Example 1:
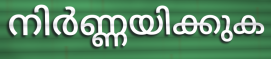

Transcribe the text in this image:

നിർണ്ണയിക്കുക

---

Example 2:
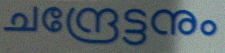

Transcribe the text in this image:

ചന്ദ്രേട്ടനും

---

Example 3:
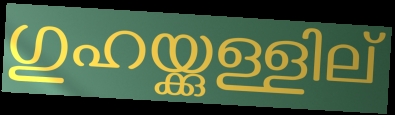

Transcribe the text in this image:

ഗുഹയ്ക്കുള്ളില്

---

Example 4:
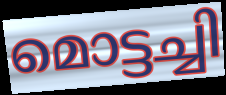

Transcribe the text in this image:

മൊട്ടച്ചി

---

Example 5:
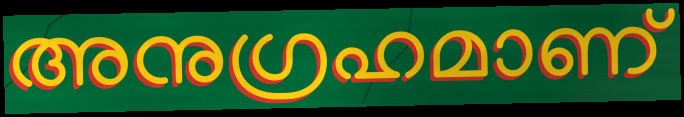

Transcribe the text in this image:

അനുഗ്രഹമാണ്